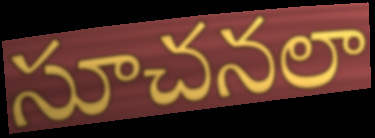
సూచనలా